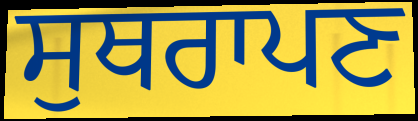
ਸੁਥਰਾਪਣ